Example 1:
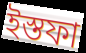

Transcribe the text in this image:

ইস্তফা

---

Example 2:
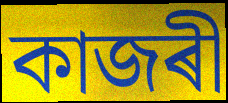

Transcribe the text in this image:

কাজৰী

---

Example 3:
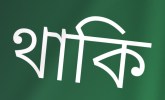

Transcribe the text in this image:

থাকি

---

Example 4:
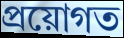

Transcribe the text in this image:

প্ৰয়োগত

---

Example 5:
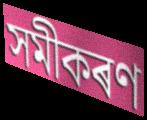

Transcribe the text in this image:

সমীকৰণ